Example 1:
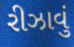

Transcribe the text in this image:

રીઝાવું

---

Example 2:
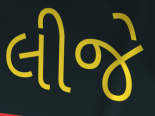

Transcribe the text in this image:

લીજે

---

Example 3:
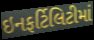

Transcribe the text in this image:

ઇનફર્ટિલિટીમાં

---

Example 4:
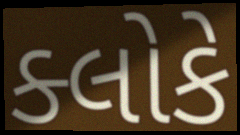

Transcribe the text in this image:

ક્લોકે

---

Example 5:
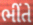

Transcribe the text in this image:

ભીંતે